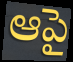
ఆపై